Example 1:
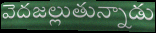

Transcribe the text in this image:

వెదజల్లుతున్నాడు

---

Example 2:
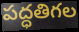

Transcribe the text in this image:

పద్ధతిగల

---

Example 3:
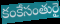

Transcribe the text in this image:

కంకేసంతురై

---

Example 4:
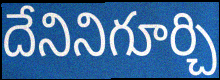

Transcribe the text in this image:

దేనినిగూర్చి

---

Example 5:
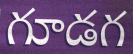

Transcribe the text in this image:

గూడగ